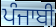
ਪੰਜਾਬੀ